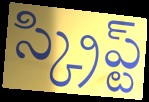
స్క్రిప్ట్